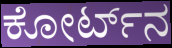
ಕೋರ್ಟ್‍ನ